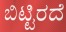
ಬಿಟ್ಟಿರದೆ